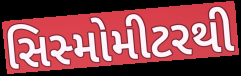
સિસ્મોમીટરથી